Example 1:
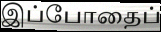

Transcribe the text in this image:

இப்போதைப்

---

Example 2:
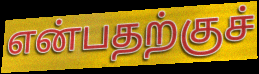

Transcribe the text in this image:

என்பதற்குச்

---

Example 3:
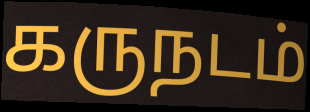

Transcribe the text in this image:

கருநடம்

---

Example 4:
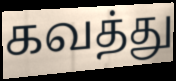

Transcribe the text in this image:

கவத்து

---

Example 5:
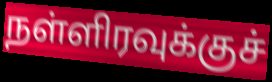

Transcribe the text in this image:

நள்ளிரவுக்குச்